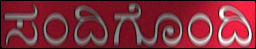
ಸಂದಿಗೊಂದಿ